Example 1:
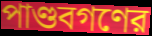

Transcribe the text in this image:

পাণ্ডবগণের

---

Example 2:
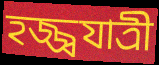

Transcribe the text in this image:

হজ্জ্বযাত্রী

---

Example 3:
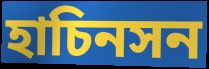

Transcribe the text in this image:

হাচিনসন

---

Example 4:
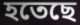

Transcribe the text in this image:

হতেছে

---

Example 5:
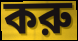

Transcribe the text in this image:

করু